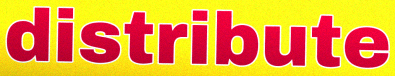
distribute